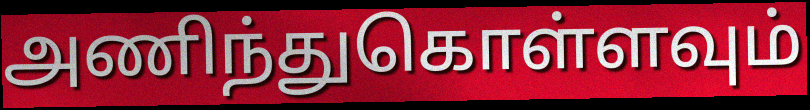
அணிந்துகொள்ளவும்